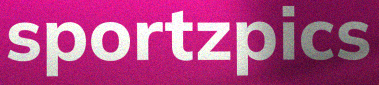
sportzpics